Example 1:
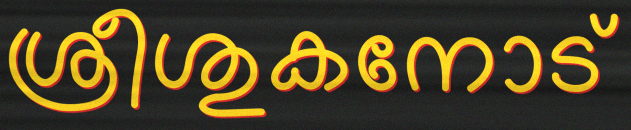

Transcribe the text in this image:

ശ്രീശുകനോട്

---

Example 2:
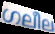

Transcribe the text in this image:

ഗലീല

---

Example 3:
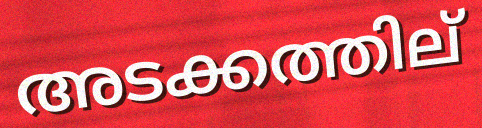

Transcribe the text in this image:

അടക്കത്തില്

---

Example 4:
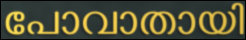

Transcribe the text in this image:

പോവാതായി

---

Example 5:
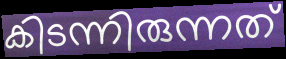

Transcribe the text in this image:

കിടന്നിരുന്നത്